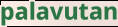
palavutan